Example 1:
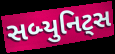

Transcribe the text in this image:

સબ્યુનિટ્સ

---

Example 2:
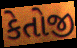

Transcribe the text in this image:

કેતોજી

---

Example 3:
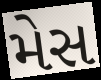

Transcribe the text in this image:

મેસ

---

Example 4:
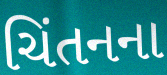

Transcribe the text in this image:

ચિંતનના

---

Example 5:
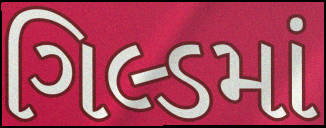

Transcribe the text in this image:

ગિલ્ડમાં